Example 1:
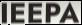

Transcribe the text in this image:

IEEPA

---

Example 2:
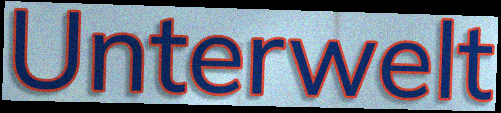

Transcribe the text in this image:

Unterwelt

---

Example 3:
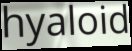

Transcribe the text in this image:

hyaloid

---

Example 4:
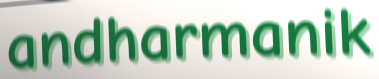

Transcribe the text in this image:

andharmanik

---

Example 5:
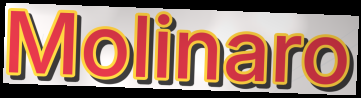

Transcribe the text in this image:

Molinaro